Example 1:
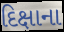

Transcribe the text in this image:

દિક્ષાના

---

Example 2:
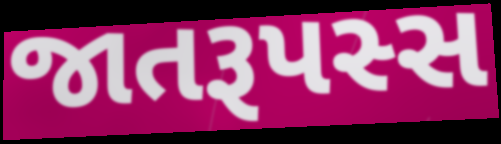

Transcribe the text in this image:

જાતરૂપસ્સ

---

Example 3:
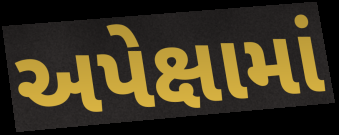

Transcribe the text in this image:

અપેક્ષામાં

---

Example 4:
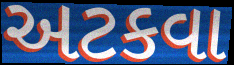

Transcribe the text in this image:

અટકવા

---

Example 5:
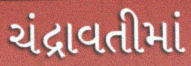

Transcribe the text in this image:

ચંદ્રાવતીમાં